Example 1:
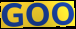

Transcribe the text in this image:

GOO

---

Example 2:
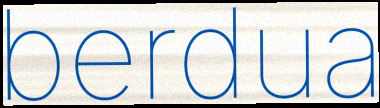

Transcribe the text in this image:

berdua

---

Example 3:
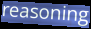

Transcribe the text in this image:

reasoning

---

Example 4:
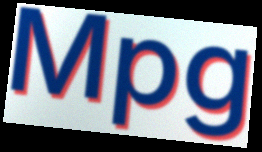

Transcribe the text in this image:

Mpg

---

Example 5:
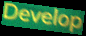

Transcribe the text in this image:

Develop